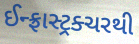
ઈન્ફ્રાસ્ટ્રક્ચરથી